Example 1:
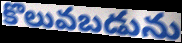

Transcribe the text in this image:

కొలువబడును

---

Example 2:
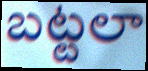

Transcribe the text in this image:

బట్టలా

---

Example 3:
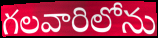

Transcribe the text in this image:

గలవారిలోను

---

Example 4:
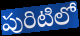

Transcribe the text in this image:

పురిటిలో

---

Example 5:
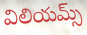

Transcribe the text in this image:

విలియమ్స్